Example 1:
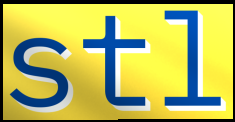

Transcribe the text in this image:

stl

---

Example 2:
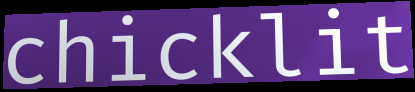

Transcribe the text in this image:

chicklit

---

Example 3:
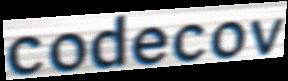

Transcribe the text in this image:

codecov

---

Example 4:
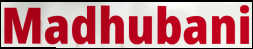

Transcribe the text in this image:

Madhubani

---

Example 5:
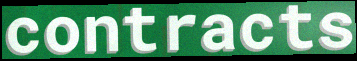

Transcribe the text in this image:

contracts